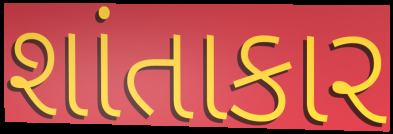
શાંતાકાર